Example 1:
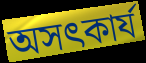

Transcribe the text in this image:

অসৎকার্য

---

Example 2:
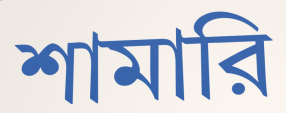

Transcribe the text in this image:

শামারি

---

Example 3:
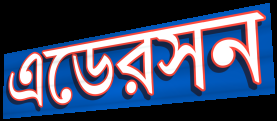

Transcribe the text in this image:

এডেরসন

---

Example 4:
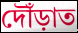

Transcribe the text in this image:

দৌঁড়াত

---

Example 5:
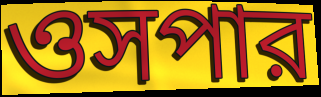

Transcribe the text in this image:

ওসপার